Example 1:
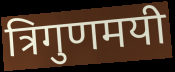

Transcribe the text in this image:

त्रिगुणमयी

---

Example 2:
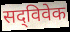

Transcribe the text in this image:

सद्‌विवेक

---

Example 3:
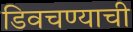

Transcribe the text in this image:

डिवचण्याची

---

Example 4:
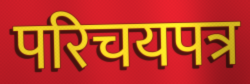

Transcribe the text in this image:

परिचयपत्र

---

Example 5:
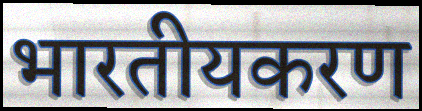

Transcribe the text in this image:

भारतीयकरण